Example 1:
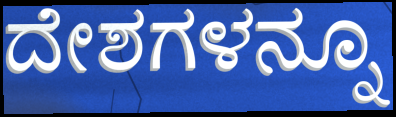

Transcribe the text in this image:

ದೇಶಗಳನ್ನೂ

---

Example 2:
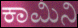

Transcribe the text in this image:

ಕಾಮಿನಿ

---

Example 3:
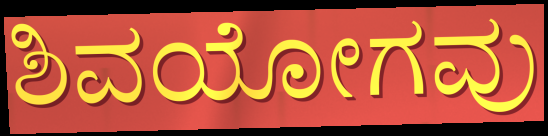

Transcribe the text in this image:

ಶಿವಯೋಗವು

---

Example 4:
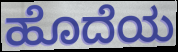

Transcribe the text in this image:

ಹೊದೆಯ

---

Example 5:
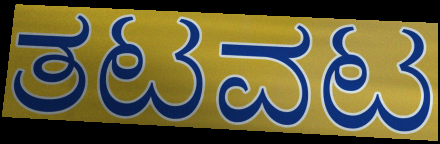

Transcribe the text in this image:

ತಟವಟ